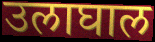
उलाघाल